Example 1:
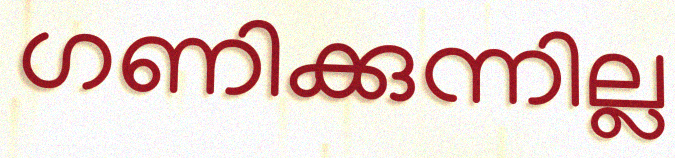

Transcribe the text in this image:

ഗണിക്കുന്നില്ല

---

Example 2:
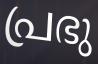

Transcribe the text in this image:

പ്രഭു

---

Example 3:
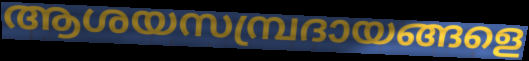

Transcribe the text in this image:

ആശയസമ്പ്രദായങ്ങളെ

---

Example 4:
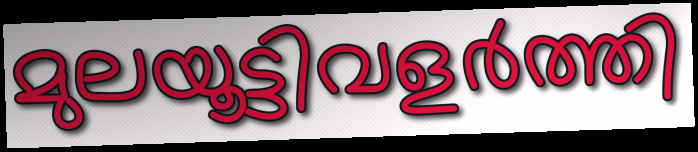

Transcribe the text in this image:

മുലയൂട്ടിവളർത്തി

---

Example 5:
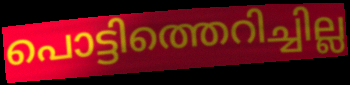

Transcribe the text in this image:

പൊട്ടിത്തെറിച്ചില്ല